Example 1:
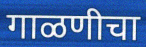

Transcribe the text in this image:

गाळणीचा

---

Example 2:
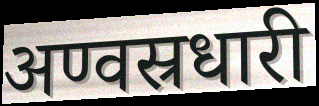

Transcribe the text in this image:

अण्वस्रधारी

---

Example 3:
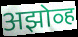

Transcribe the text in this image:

अझोव्ह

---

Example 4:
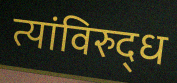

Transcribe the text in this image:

त्यांविरुद्ध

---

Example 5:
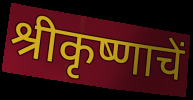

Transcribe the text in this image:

श्रीकृष्णाचें